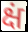
क्षं